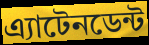
এ্যাটেনডেন্ট